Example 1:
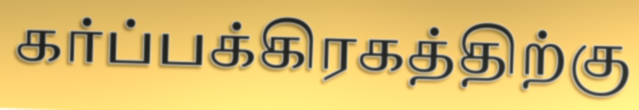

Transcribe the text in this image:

கர்ப்பக்கிரகத்திற்கு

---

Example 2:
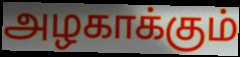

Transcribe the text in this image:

அழகாக்கும்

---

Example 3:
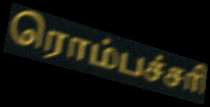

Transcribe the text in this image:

ரொம்பச்சரி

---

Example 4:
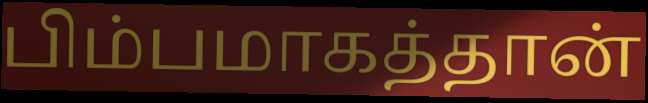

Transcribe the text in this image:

பிம்பமாகத்தான்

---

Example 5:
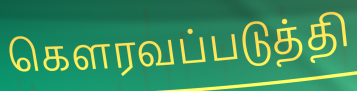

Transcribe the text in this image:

கெளரவப்படுத்தி